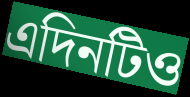
এদিনটিও